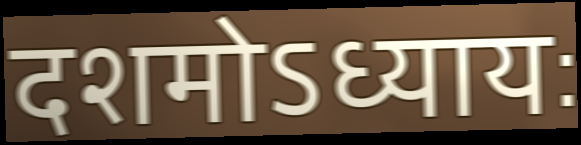
दशमोऽध्यायः